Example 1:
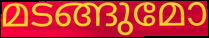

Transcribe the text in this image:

മടങ്ങുമോ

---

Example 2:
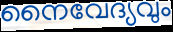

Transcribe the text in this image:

നൈവേദ്യവും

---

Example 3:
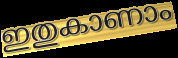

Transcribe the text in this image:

ഇതുകാണാം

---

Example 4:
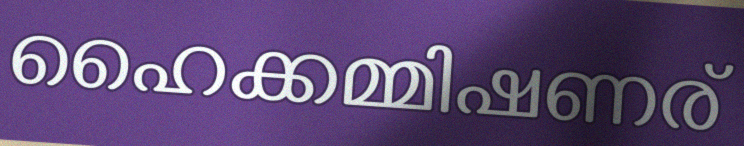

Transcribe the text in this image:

ഹൈക്കമ്മിഷണര്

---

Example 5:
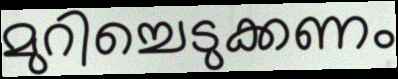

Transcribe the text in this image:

മുറിച്ചെടുക്കണം